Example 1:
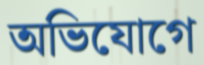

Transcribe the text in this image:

অভিযোগে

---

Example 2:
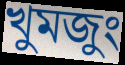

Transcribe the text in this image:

খুমজুং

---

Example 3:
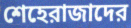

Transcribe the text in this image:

শেহেরাজাদের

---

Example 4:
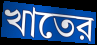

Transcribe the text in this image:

খাতের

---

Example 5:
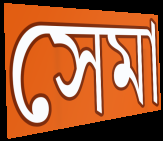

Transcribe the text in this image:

সেমা